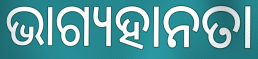
ଭାଗ୍ୟହାନତା